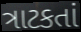
ત્રાટકતાં